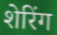
शेरिंग